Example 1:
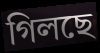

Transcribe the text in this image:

গিলছে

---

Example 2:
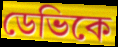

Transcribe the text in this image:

ডেভিকে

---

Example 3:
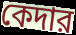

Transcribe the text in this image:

কেদার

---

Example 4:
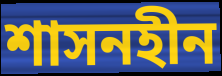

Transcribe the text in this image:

শাসনহীন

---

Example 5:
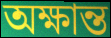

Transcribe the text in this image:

অক্ষান্ত